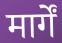
मार्गें